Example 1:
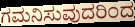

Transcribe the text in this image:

ಗಮನಿಸುವುದರಿಂದ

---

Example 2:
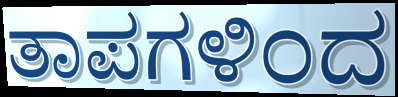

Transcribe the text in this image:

ತಾಪಗಳಿಂದ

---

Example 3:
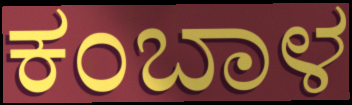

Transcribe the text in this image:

ಕಂಬಾಳ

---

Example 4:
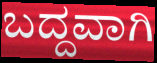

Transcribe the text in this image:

ಬದ್ದವಾಗಿ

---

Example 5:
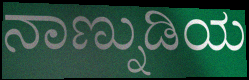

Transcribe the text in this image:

ನಾಣ್ನುಡಿಯ